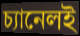
চ্যানেলই